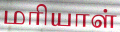
மரியாள்